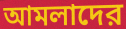
আমলাদের